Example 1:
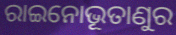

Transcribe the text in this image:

ରାଇନୋଭୂତାଣୁର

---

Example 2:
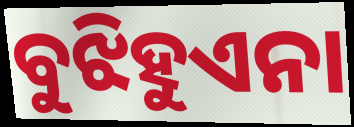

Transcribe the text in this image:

ବୁଝିହୁଏନା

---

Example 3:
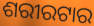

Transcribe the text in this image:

ଶରୀରଟାର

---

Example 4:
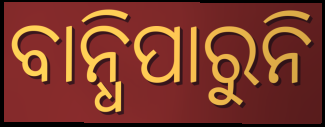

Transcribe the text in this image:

ବାନ୍ଧିପାରୁନି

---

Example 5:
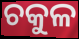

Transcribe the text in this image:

ଚକୁଳ